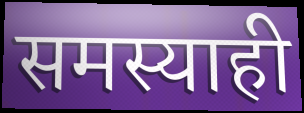
समस्याही